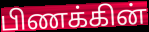
பிணக்கின்